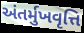
અંતર્મુખવૃત્તિ